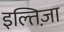
इल्तिज़ा